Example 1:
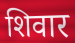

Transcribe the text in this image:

शिवार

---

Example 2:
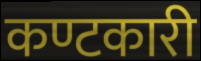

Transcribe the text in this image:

कण्टकारी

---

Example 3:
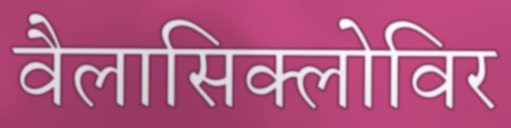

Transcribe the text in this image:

वैलासिक्लोविर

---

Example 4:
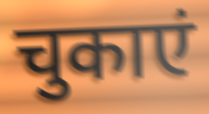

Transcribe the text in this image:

चुकाएं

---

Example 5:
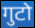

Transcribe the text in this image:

गुटो